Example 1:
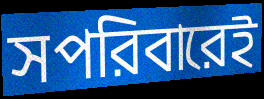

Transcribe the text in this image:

সপরিবারেই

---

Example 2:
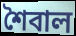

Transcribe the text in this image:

শৈবাল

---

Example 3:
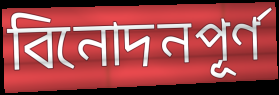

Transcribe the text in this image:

বিনোদনপূর্ণ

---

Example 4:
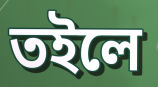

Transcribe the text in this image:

তইলে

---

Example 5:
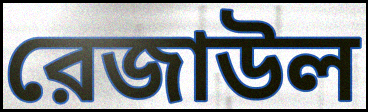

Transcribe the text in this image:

রেজাউল